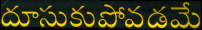
దూసుకుపోవడమే